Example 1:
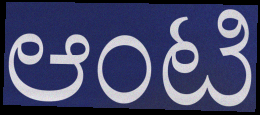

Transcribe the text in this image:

ಆಂಟಿ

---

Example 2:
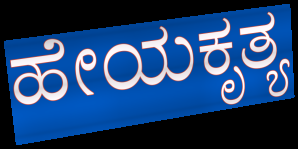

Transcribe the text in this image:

ಹೇಯಕೃತ್ಯ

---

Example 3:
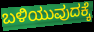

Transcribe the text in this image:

ಬಳಿಯುವುದಕ್ಕೆ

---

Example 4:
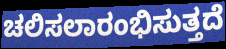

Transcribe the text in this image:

ಚಲಿಸಲಾರಂಭಿಸುತ್ತದೆ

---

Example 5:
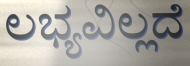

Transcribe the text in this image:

ಲಭ್ಯವಿಲ್ಲದೆ